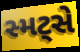
સ્મટ્સે